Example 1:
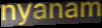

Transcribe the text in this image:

nyanam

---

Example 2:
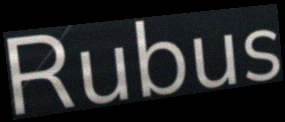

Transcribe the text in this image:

Rubus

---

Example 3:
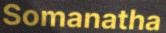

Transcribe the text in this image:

Somanatha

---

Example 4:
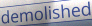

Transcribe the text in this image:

demolished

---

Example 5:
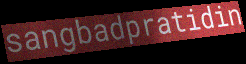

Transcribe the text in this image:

sangbadpratidin